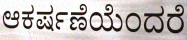
ಆಕರ್ಷಣೆಯೆಂದರೆ